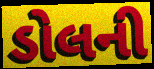
ડોલની